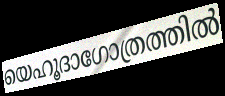
യെഹൂദാഗോത്രത്തിൽ